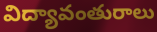
విద్యావంతురాలు